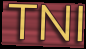
TNI